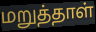
மறுத்தாள்